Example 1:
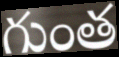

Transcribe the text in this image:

గుంత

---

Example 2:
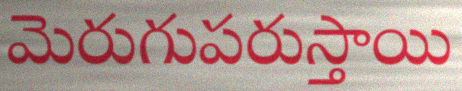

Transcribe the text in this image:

మెరుగుపరుస్తాయి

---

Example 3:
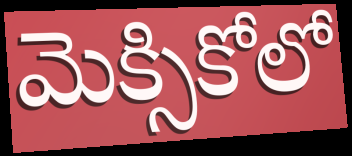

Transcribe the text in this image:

మెక్సికోలో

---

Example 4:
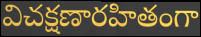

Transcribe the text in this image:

విచక్షణారహితంగా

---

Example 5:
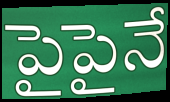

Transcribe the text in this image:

పైపైనే